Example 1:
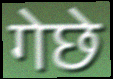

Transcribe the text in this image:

गेछे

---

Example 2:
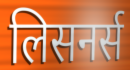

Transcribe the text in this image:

लिसनर्स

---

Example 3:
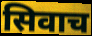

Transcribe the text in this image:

सिवाच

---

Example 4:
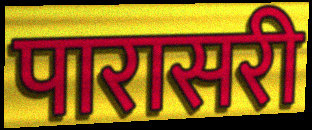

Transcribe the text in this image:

पारासरी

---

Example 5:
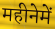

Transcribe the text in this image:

महीनेमें